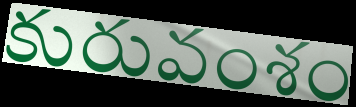
కురువంశం